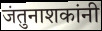
जंतुनाशकांनी